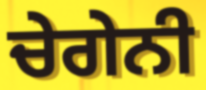
ਚੇਗੇਨੀ